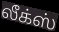
லீக்ஸ்